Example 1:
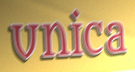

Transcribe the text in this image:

unica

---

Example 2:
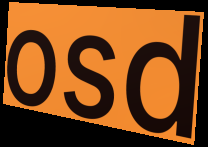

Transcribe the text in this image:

osd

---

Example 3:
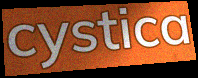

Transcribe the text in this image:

cystica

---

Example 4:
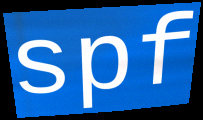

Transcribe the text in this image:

spf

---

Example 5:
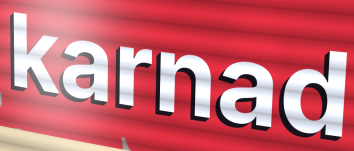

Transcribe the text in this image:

karnad